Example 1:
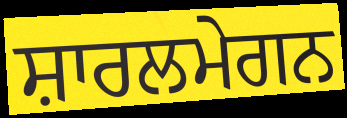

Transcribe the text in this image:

ਸ਼ਾਰਲਮੇਗਨ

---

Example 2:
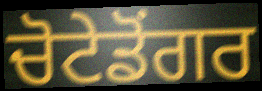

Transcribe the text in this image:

ਚੋਟੇਡੋਂਗਰ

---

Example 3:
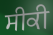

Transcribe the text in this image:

ਸੀਕੀ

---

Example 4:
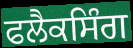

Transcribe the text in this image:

ਫਲੈਕਸਿੰਗ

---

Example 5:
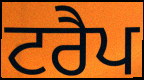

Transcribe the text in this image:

ਟਰੈਪ